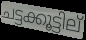
ചട്ടക്കൂട്ടില്